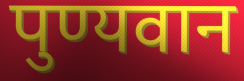
पुण्यवान